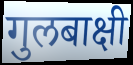
गुलबाक्षी